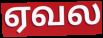
ஏவல